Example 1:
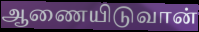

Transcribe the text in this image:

ஆணையிடுவான்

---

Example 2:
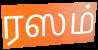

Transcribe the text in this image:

ரஸம்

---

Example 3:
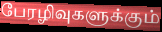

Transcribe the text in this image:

பேரழிவுகளுக்கும்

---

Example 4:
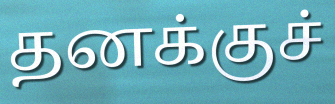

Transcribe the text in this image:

தனக்குச்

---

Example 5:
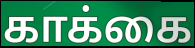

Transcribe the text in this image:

காக்கை